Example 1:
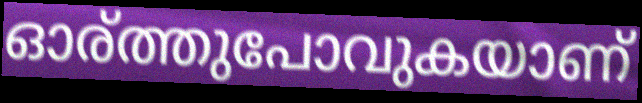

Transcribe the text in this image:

ഓര്ത്തുപോവുകയാണ്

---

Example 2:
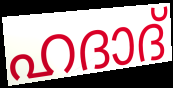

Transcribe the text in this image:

ഹദാദ്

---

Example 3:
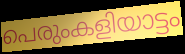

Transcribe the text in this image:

പെരുംകളിയാട്ടം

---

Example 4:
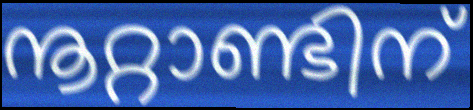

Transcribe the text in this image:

നൂറ്റാണ്ടിന്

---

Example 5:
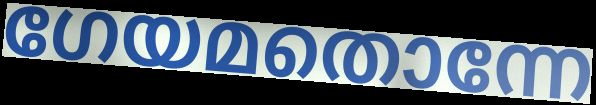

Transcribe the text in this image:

ഗേയമതൊന്നേ